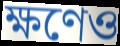
ক্ষণেও